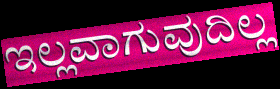
ಇಲ್ಲವಾಗುವುದಿಲ್ಲ